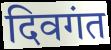
दिवगंत